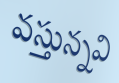
వస్తున్నవి